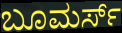
ಬೂಮರ್ಸ್